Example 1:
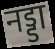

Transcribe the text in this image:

नड्डा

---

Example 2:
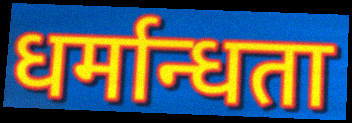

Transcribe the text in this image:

धर्मान्धता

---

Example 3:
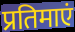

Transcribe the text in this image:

प्रतिमाएं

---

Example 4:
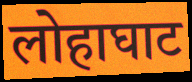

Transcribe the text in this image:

लोहाघाट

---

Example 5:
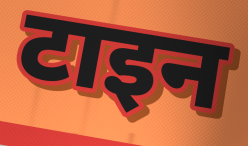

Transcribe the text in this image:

टाइन